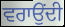
ਵਰਾਉਂਦੀ